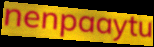
nenpaaytu